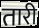
तारी